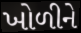
ખોળીને